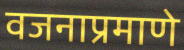
वजनाप्रमाणे